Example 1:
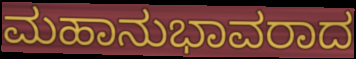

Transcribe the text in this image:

ಮಹಾನುಭಾವರಾದ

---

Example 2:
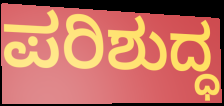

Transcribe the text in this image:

ಪರಿಶುದ್ಧ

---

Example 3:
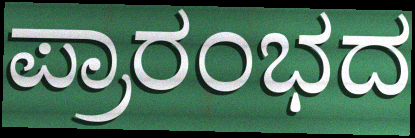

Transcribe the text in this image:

ಪ್ರಾರಂಭದ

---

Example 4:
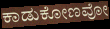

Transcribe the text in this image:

ಕಾಡುಕೋಣವೋ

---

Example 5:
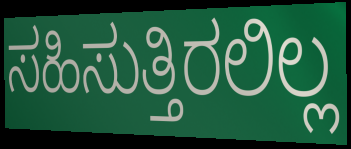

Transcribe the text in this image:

ಸಹಿಸುತ್ತಿರಲಿಲ್ಲ